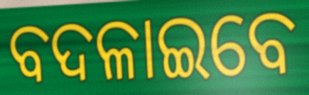
ବଦଳାଇବେ